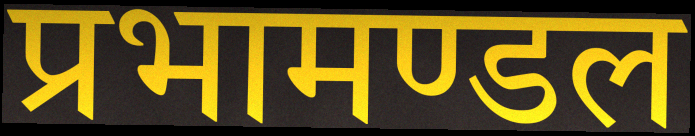
प्रभामण्डल